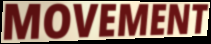
MOVEMENT